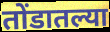
तोंडातल्या